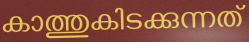
കാത്തുകിടക്കുന്നത്